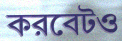
করবেটও